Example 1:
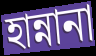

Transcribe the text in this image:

হান্নানা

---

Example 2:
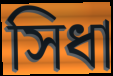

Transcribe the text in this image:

সিধা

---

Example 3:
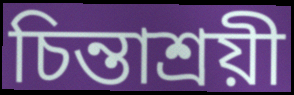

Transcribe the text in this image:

চিন্তাশ্রয়ী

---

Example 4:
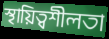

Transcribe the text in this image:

স্থায়িত্বশীলতা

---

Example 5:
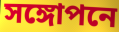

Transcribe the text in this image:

সঙ্গোপনে